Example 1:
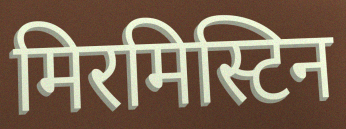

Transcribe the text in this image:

मिरमिस्टिन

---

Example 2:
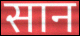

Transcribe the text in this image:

सान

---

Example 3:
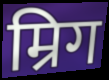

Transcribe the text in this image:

म्रिग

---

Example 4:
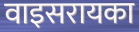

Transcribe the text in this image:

वाइसरायका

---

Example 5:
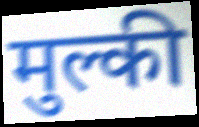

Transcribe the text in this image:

मुल्की